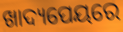
ଖାଦ୍ୟପେୟରେ